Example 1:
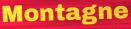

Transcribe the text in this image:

Montagne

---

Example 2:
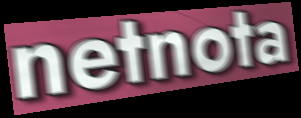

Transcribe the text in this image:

netnota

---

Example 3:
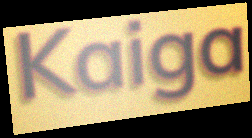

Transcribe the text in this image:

Kaiga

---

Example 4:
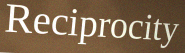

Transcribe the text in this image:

Reciprocity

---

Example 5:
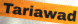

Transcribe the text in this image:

Tariawad